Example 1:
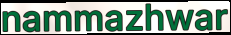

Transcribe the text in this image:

nammazhwar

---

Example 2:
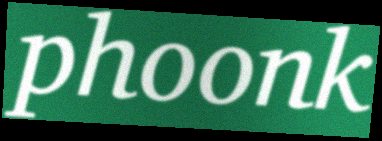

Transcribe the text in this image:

phoonk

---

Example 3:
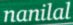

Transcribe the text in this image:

nanilal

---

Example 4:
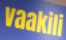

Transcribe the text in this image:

vaakili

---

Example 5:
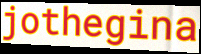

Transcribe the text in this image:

jothegina